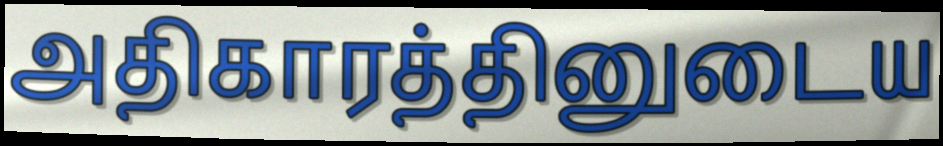
அதிகாரத்தினுடைய